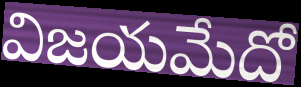
విజయమేదో